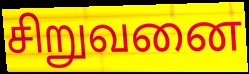
சிறுவனை